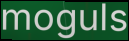
moguls